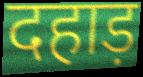
दहाड़